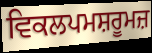
ਵਿਕਲਪਮਸ਼ਰੂਮਜ਼